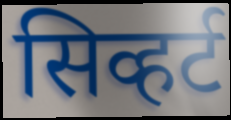
सिव्हर्ट